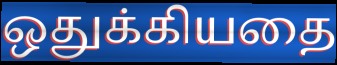
ஒதுக்கியதை